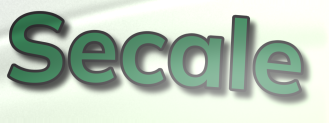
Secale